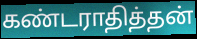
கண்டராதித்தன்